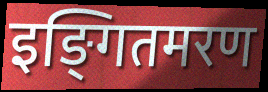
इङ्गितमरण